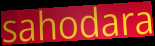
sahodara